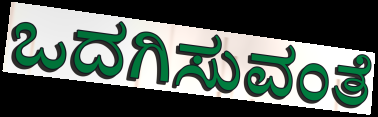
ಒದಗಿಸುವಂತೆ